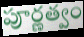
పూర్ణత్వం